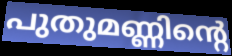
പുതുമണ്ണിന്റെ